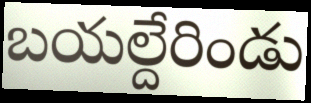
బయల్దేరిండు